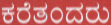
ಕರೆತಂದರು